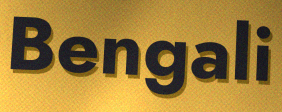
Bengali